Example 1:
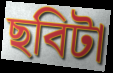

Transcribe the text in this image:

ছবিটা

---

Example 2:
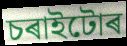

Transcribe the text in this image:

চৰাইটোৰ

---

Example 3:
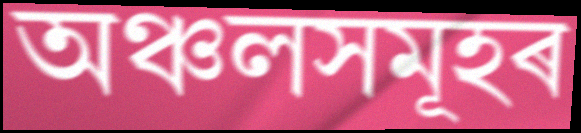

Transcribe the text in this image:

অঞ্চলসমূহৰ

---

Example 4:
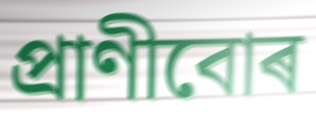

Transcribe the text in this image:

প্ৰাণীবোৰ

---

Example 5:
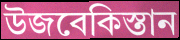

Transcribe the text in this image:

উজবেকিস্তান